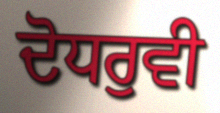
ਦੋਧਰੁਵੀ